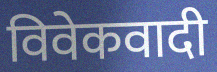
विवेकवादी